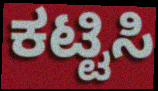
ಕಟ್ಟಿಸಿ